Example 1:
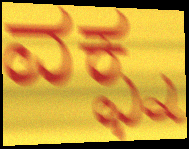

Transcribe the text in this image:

ವಕ್ಫ್ನ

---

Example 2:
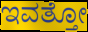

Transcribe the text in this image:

ಇವತ್ತೋ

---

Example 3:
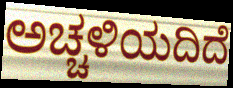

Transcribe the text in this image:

ಅಚ್ಚಳಿಯದಿದೆ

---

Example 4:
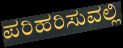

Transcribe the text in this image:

ಪರಿಹರಿಸುವಲ್ಲಿ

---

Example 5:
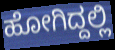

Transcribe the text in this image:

ಹೋಗಿದ್ದಲ್ಲಿ